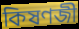
কিষণজী